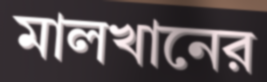
মালখানের